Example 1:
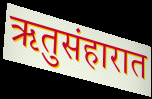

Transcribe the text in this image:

ऋतुसंहारात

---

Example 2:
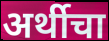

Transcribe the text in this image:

अर्थीचा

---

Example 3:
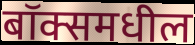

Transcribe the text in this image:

बॉक्समधील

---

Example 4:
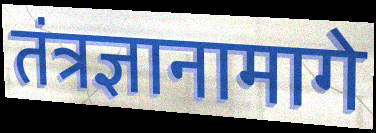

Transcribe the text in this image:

तंत्रज्ञानामागे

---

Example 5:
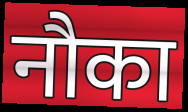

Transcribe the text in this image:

नौका